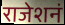
राजेशनं